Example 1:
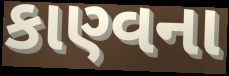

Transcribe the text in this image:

કાણ્વના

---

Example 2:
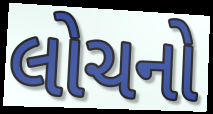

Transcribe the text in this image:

લોચનો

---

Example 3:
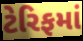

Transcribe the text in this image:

ટેરિફમાં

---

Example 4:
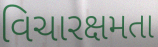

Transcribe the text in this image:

વિચારક્ષમતા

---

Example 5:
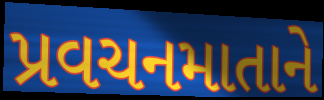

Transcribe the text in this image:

પ્રવચનમાતાને